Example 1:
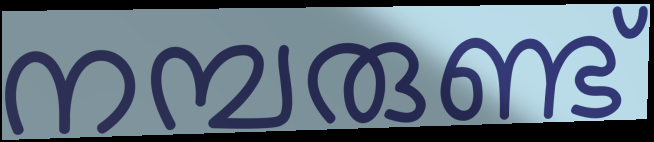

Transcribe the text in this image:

നമ്പരുണ്ട്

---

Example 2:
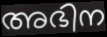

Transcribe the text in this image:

അഭിന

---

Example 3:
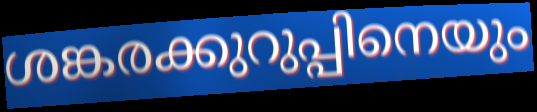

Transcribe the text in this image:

ശങ്കരക്കുറുപ്പിനെയും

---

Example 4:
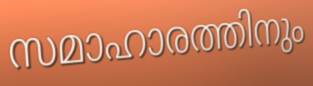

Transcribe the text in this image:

സമാഹാരത്തിനും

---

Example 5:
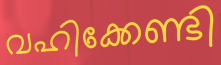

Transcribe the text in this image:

വഹിക്കേണ്ടി